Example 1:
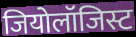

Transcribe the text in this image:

जियोलॉजिस्ट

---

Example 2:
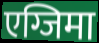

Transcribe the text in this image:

एग्जिमा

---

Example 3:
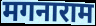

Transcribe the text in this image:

मगनाराम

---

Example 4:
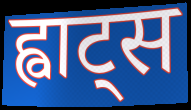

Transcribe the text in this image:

ह्वाट्स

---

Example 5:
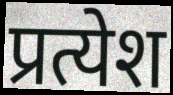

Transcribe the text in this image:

प्रत्येश